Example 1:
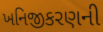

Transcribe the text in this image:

ખનિજીકરણની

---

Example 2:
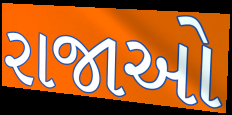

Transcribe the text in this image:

રાજાઓ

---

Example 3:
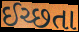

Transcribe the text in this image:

ઈચ્છતા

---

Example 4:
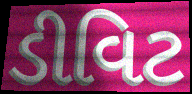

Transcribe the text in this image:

ડીવિટ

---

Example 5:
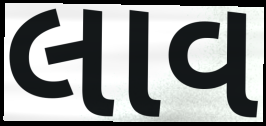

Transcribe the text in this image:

લાવ